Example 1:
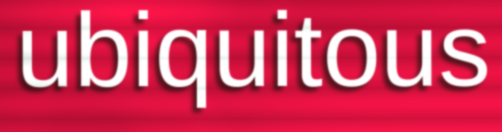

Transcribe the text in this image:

ubiquitous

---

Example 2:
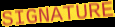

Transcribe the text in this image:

SIGNATURE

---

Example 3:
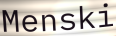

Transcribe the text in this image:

Menski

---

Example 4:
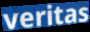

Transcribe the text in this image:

veritas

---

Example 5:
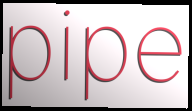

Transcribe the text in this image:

pipe